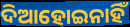
ଦିଆହୋଇନାହିଁ